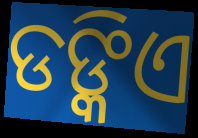
ଡଙ୍କିଏ